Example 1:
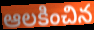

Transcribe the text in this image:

ఆలకించిన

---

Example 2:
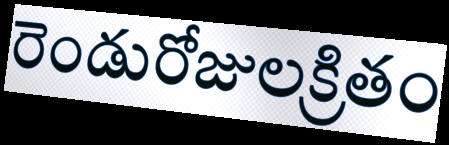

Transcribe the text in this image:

రెండురోజులక్రితం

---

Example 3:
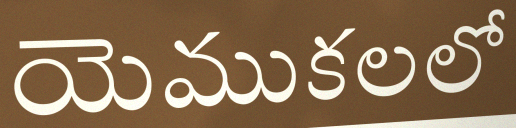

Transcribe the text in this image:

యెముకలలో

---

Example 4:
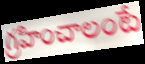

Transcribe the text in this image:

గ్రహించాలంటే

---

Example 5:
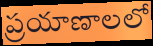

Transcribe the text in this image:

ప్రయాణాలలో